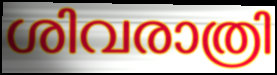
ശിവരാത്രി